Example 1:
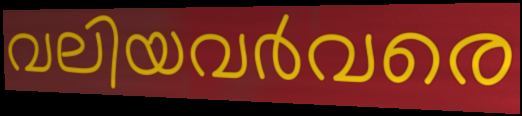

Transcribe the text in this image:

വലിയവർവരെ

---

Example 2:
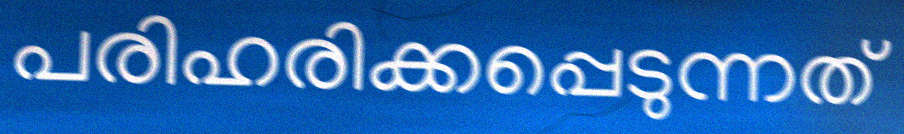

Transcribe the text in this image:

പരിഹരിക്കപ്പെടുന്നത്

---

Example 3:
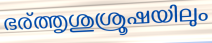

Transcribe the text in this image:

ഭര്ത്തൃശുശ്രൂഷയിലും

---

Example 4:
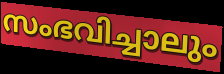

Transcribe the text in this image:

സംഭവിച്ചാലും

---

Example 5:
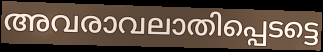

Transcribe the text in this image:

അവരാവലാതിപ്പെടട്ടെ